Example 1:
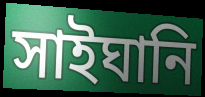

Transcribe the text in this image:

সাইঘানি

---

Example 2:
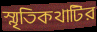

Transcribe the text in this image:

স্মৃতিকথাটির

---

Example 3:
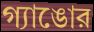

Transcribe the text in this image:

গ্যাঙোর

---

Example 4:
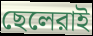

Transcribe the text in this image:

ছেলেরাই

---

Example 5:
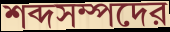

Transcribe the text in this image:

শব্দসম্পদের